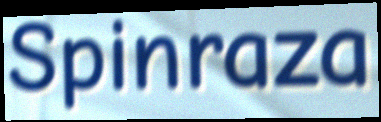
Spinraza